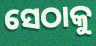
ସେଠାକୁ